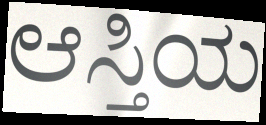
ಆಸ್ತಿಯ